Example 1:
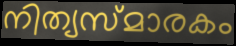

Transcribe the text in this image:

നിത്യസ്മാരകം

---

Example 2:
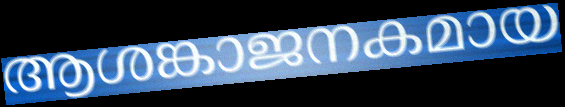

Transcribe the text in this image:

ആശങ്കാജനകമായ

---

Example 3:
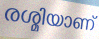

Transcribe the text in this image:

രശ്മിയാണ്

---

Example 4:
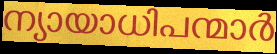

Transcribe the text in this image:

ന്യായാധിപന്മാർ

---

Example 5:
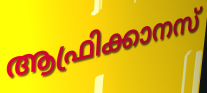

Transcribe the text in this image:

ആഫ്രിക്കാനസ്